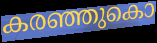
കരഞ്ഞുകൊ